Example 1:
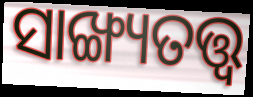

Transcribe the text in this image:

ସାଙ୍ଖ୍ୟତତ୍ତ୍ଵ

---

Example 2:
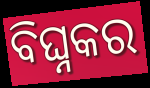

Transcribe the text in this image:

ବିଘ୍ନକର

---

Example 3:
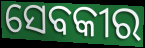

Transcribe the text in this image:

ସେବକୀର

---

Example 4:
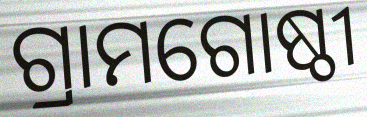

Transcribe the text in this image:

ଗ୍ରାମଗୋଷ୍ଠୀ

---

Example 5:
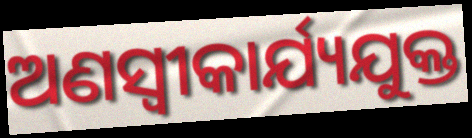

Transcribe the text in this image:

ଅଣସ୍ବୀକାର୍ଯ୍ୟଯୁକ୍ତ